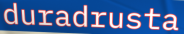
duradrusta